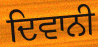
ਦਿਵਾਨੀ